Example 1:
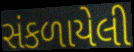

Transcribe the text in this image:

સંકળાયેલી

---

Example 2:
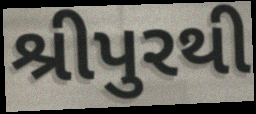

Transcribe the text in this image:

શ્રીપુરથી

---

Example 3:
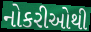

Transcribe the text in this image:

નોકરીઓથી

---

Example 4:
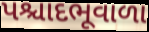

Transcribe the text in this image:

પશ્ચાદભૂવાળા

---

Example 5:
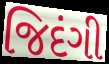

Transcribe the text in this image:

જિદંગી